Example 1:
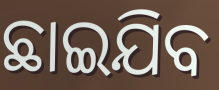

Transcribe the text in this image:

ଛାଇଯିବ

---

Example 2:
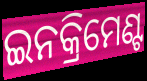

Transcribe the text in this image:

ଇନକ୍ରିମେଣ୍ଟ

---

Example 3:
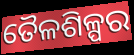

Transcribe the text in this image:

ତୈଳଶିଳ୍ପର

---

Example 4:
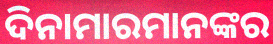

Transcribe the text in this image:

ଦିନାମାରମାନଙ୍କର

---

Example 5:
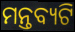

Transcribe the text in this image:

ମନ୍ତବ୍ୟଟି